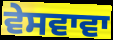
ਵੇਸਵਾਵਾ